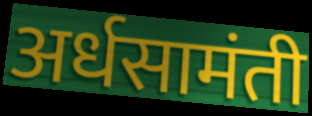
अर्धसामंती